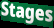
Stages